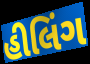
હીલિંગ